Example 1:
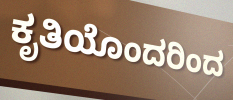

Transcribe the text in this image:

ಕೃತಿಯೊಂದರಿಂದ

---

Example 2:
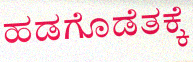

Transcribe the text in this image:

ಹಡಗೊಡೆತಕ್ಕೆ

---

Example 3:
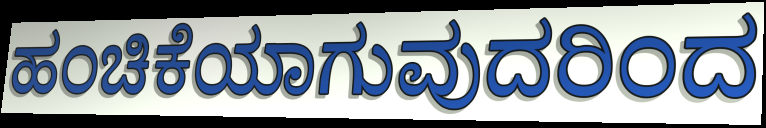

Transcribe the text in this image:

ಹಂಚಿಕೆಯಾಗುವುದರಿಂದ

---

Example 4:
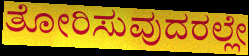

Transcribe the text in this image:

ತೋರಿಸುವುದರಲ್ಲೇ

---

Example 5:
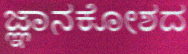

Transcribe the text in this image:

ಜ್ಞಾನಕೋಶದ